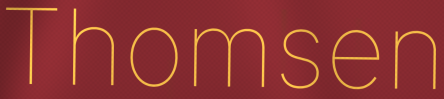
Thomsen